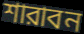
শারাবন